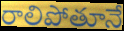
రాలిపోతూనే